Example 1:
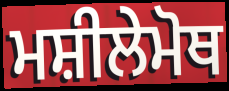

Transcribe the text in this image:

ਮਸ਼ੀਲੇਮੋਥ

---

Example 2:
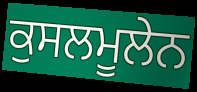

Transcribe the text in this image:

ਕੁਸਲਮੂਲੇਨ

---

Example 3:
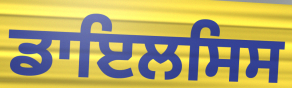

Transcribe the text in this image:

ਡਾਇਲਸਿਸ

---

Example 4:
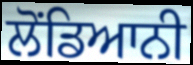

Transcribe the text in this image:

ਲੋਂਡਿਆਨੀ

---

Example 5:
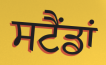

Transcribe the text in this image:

ਸਟੈਂਡਾਂ